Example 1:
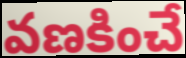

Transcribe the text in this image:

వణకించే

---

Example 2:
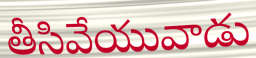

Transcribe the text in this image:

తీసివేయువాడు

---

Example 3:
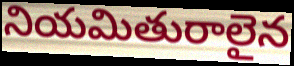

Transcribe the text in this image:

నియమితురాలైన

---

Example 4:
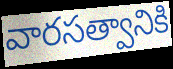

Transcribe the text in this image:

వారసత్వానికి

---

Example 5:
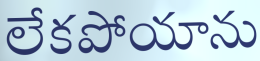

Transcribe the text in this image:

లేకపోయాను